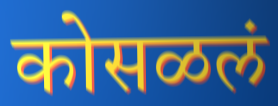
कोसळलं